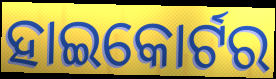
ହାଇକୋର୍ଟର